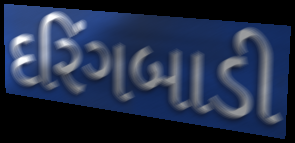
દરિંગબાડી